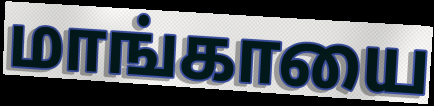
மாங்காயை